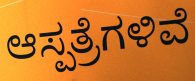
ಆಸ್ಪತ್ರೆಗಳಿವೆ